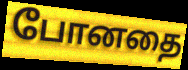
போனதை